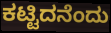
ಕಟ್ಟಿದನೆಂದು